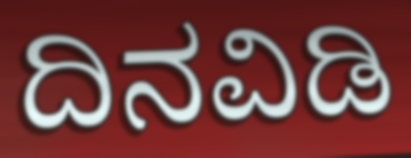
ದಿನವಿಡಿ